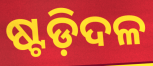
ଷ୍ଟଡ଼ିଦଳ